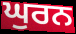
ਘੁਰਨ